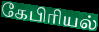
கேபிரியல்